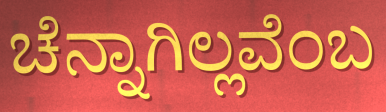
ಚೆನ್ನಾಗಿಲ್ಲವೆಂಬ